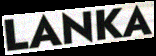
LANKA